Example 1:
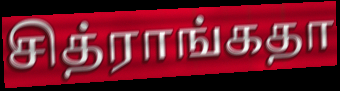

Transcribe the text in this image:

சித்ராங்கதா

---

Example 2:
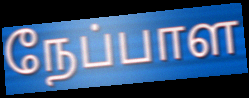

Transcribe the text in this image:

நேப்பாள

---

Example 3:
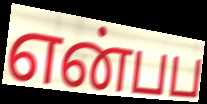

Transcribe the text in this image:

என்பப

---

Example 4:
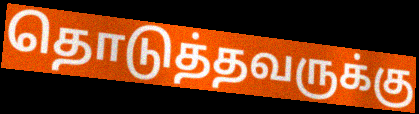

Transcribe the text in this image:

தொடுத்தவருக்கு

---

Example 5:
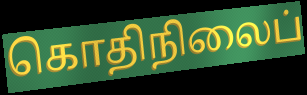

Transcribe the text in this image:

கொதிநிலைப்